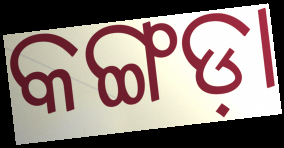
କଙ୍ଗଡ଼ା